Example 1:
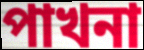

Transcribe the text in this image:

পাখনা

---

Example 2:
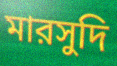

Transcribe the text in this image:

মারসুদি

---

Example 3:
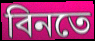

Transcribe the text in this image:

বিনতে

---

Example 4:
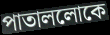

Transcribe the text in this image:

পাতাললোকে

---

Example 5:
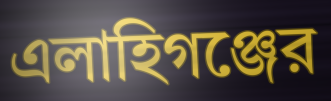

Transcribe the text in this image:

এলাহিগঞ্জের